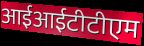
आईआईटीटीएम